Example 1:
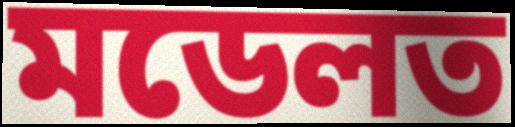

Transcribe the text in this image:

মডেলত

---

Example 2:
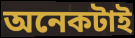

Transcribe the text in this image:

অনেকটাই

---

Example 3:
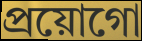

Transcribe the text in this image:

প্ৰয়োগো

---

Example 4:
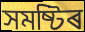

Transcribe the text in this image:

সমষ্টিৰ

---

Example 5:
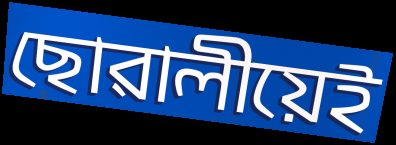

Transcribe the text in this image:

ছোৱালীয়েই